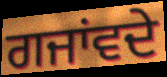
ਗਜਾਂਵਦੇ